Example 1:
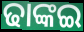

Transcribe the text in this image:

ଢାଙ୍କଇ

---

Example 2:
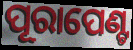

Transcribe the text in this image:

ପୂରାପେଣ୍ଟ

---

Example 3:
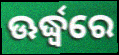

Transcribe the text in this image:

ଊର୍ଦ୍ଧ୍ୱରେ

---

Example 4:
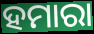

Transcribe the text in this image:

ହମାରା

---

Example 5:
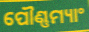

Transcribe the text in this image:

ପୌଣ୍ଣମ୍ୟାଂ